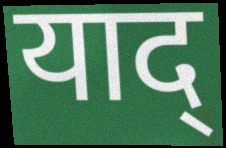
याद्